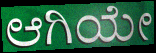
ಆಗಿಯೇ